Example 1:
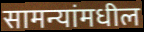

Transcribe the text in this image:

सामन्यांमधील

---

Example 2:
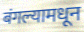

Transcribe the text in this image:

बंगल्यामधून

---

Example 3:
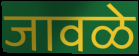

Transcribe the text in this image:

जावळे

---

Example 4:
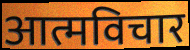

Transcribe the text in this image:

आत्मविचार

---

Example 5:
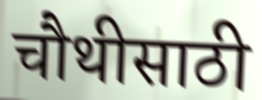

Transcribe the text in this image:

चौथीसाठी